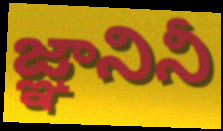
జ్ఞానినీ